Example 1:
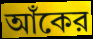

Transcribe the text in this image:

আঁকের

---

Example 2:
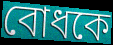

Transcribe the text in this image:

বোধকে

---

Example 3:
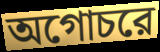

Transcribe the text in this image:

অগোচরে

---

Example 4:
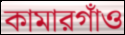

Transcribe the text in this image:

কামারগাঁও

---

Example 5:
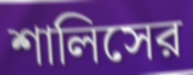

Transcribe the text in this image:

শালিসের